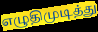
எழுதிமுடித்து